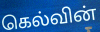
கெல்வின்